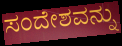
ಸಂದೇಶವನ್ನು